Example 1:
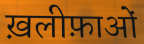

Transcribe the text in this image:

ख़लीफ़ाओं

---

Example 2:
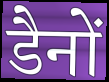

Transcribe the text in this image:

डैनों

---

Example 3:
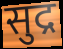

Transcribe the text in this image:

सुद्र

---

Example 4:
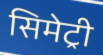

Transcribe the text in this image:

सिमेट्री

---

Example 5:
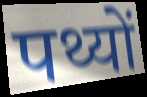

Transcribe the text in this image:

पथ्यों